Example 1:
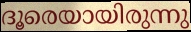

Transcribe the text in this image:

ദൂരെയായിരുന്നു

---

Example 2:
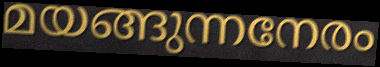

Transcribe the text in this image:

മയങ്ങുന്നനേരം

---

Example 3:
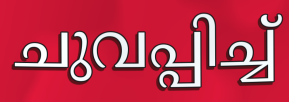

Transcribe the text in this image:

ചുവപ്പിച്ച്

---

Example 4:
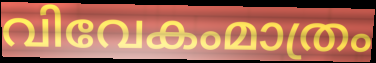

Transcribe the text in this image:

വിവേകംമാത്രം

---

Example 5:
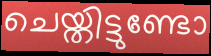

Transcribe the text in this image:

ചെയ്തിട്ടുണ്ടോ